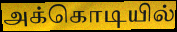
அக்கொடியில்